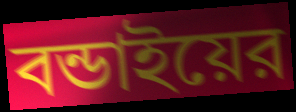
বন্ডাইয়ের